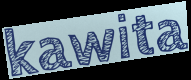
kawita